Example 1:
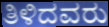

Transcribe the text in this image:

ತಿಳಿದವರು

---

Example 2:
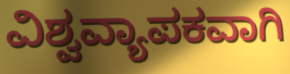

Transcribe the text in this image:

ವಿಶ್ವವ್ಯಾಪಕವಾಗಿ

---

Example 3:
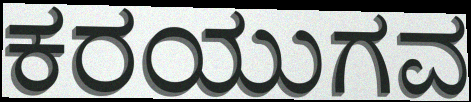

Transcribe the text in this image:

ಕರಯುಗವ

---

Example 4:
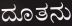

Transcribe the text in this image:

ದೂತನು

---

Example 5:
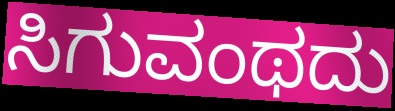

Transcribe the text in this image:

ಸಿಗುವಂಥದು